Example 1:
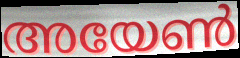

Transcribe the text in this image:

അയേൺ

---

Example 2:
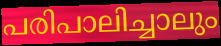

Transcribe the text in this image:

പരിപാലിച്ചാലും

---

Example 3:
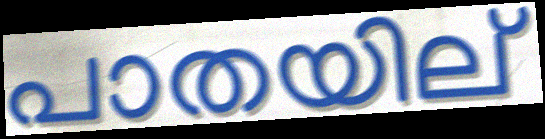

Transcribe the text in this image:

പാതയില്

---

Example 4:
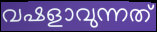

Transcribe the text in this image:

വഷളാവുന്നത്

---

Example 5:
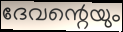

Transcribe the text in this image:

ദേവന്റെയും